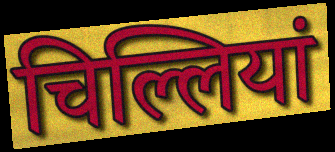
चिल्लियां